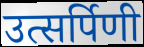
उत्सर्पिणी